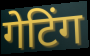
गेटिंग